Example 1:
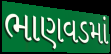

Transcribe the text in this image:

ભાણવડમાં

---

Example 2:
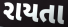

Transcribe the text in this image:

રાયતા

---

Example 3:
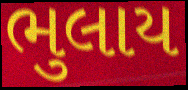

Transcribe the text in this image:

ભુલાય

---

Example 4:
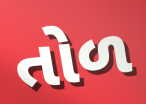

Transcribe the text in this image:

તોળ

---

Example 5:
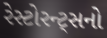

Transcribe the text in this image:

રેસ્ટોરન્ટ્સનો